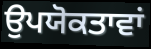
ਉਪਯੋਕਤਾਵਾਂ